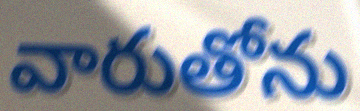
వారుతోను